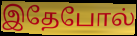
இதேபோல்